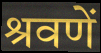
श्रवणें